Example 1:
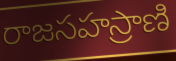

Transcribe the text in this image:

రాజసహస్రాణి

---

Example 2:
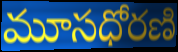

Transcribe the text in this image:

మూసధోరణి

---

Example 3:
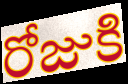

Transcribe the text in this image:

రోజుకి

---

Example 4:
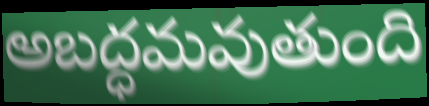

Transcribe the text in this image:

అబద్ధమవుతుంది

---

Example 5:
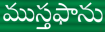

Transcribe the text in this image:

ముస్తఫాను